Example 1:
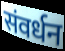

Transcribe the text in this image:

संवर्धन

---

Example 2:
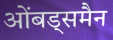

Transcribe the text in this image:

ओंबड्समैन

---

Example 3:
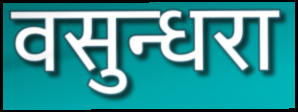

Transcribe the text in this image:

वसुन्धरा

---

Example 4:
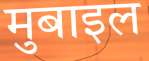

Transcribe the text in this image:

मुबाइल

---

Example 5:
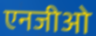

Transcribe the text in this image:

एनजीओ